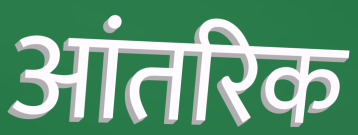
आंतरिक